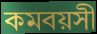
কমবয়সী